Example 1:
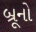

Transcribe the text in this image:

બ્રૂનો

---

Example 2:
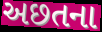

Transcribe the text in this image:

અછતના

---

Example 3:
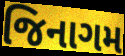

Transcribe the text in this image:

જિનાગમ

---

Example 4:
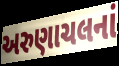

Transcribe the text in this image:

અરુણાચલનાં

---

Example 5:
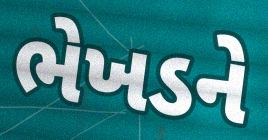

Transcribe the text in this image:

ભેખડને